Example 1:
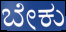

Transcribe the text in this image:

ಬೇಕು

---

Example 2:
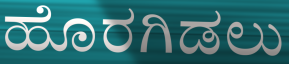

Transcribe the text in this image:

ಹೊರಗಿಡಲು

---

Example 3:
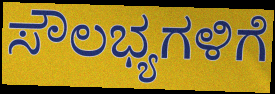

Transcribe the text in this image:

ಸೌಲಭ್ಯಗಳಿಗೆ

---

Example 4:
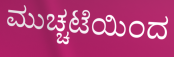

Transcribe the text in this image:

ಮುಚ್ಚಟೆಯಿಂದ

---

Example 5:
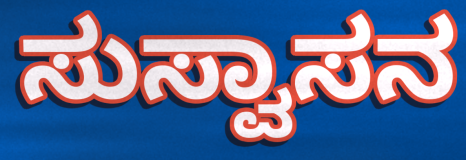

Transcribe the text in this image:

ಸುಸ್ವಾಸನ